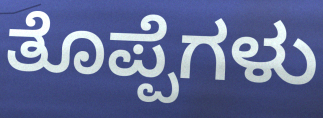
ತೊಪ್ಪೆಗಳು